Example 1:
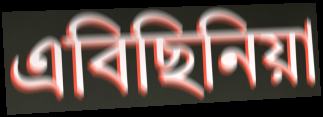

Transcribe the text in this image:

এবিছিনিয়া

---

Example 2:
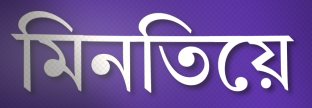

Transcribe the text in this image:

মিনতিয়ে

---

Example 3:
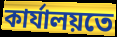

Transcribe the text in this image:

কাৰ্যালয়তে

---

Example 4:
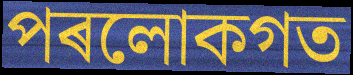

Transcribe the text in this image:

পৰলোকগত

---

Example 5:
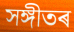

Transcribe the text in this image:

সঙ্গীতৰ